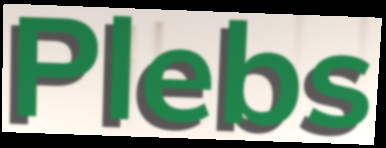
Plebs